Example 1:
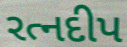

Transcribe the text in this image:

રત્નદીપ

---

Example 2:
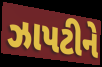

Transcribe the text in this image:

ઝાપટીને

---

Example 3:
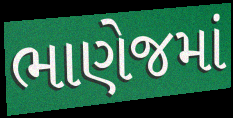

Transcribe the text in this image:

ભાણેજમાં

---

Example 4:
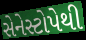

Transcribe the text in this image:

સેનેસ્ટોપેથી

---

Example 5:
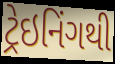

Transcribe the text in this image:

ટ્રેઇનિંગથી